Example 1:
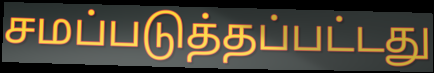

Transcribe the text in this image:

சமப்படுத்தப்பட்டது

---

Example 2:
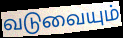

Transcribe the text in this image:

வடுவையும்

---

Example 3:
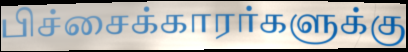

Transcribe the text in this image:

பிச்சைக்காரர்களுக்கு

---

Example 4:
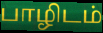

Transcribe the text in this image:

பாழிடம்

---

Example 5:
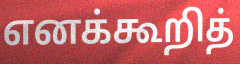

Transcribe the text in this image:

எனக்கூறித்